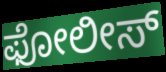
ಫೋಲೀಸ್